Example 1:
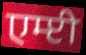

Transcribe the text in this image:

एम्प्टी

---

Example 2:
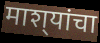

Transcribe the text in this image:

माश्यांचा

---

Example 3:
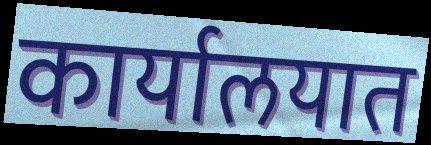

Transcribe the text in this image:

कार्यालयात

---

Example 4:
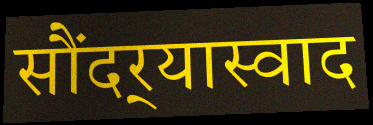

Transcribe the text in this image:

सौंदर्यास्वाद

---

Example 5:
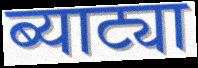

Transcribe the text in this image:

ब्याट्या